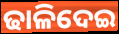
ଢାଳିଦେଇ